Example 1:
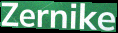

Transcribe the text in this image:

Zernike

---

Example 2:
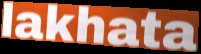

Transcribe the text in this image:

lakhata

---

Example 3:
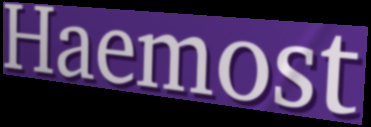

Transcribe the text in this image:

Haemost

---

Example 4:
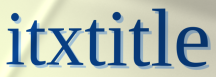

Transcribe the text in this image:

itxtitle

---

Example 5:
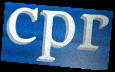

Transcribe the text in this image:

cpr